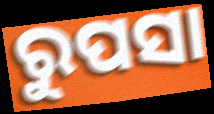
ରୁପସା